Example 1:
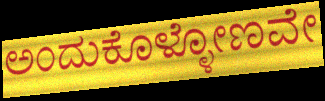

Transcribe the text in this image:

ಅಂದುಕೊಳ್ಳೋಣವೇ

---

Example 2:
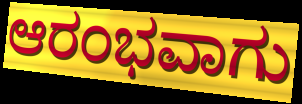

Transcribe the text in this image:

ಆರಂಭವಾಗು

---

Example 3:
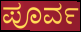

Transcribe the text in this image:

ಪೂರ್ವ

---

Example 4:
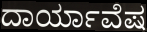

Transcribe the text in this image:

ದಾರ್ಯಾವೆಷ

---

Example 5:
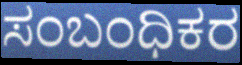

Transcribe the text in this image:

ಸಂಬಂಧಿಕರ